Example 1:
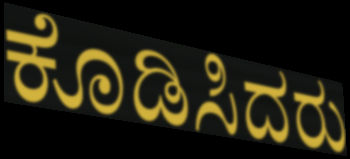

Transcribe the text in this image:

ಕೊಡಿಸಿದರು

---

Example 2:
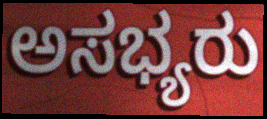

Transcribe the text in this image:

ಅಸಭ್ಯರು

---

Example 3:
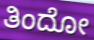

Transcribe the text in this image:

ತಿಂದೋ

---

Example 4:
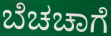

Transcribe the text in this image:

ಬೆಚಚಾಗೆ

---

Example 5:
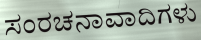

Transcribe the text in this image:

ಸಂರಚನಾವಾದಿಗಳು